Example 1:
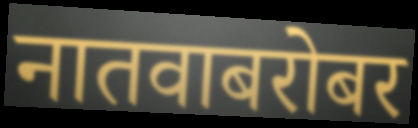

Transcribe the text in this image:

नातवाबरोबर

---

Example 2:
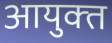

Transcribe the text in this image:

आयुक्‍त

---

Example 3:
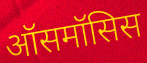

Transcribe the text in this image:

ऑसमॉसिस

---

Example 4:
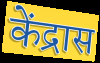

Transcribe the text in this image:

केंद्रास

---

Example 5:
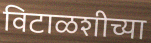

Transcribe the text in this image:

विटाळशीच्या